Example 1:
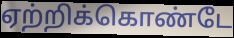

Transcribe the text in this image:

ஏற்றிக்கொண்டே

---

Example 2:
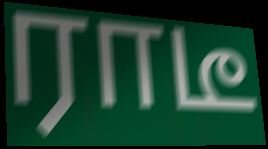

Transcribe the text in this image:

ராடீ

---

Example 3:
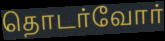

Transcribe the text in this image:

தொடர்வோர்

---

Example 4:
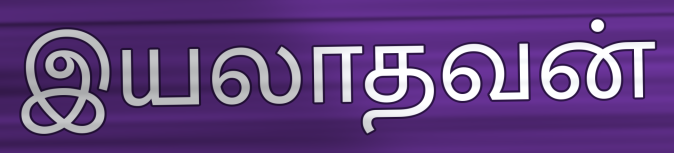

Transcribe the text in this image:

இயலாதவன்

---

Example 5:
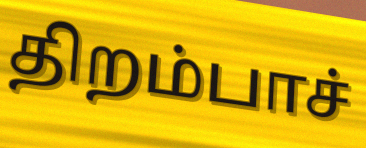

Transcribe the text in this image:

திறம்பாச்